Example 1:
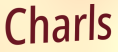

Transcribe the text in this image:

Charls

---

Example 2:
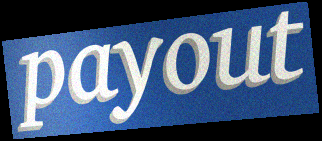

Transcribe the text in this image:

payout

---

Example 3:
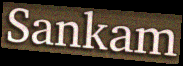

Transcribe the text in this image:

Sankam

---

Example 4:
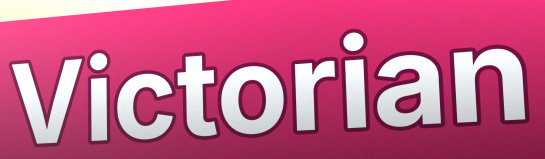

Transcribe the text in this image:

Victorian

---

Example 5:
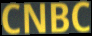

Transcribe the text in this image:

CNBC